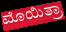
ಮೊಯಿತ್ರಾ